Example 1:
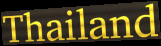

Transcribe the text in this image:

Thailand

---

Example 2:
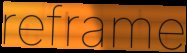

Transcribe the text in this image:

reframe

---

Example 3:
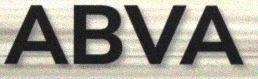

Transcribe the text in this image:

ABVA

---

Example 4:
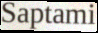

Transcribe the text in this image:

Saptami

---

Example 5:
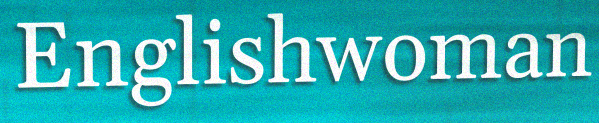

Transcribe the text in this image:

Englishwoman